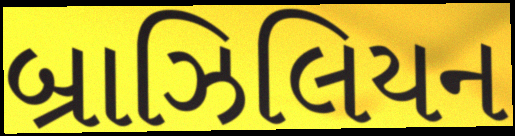
બ્રાઝિલિયન